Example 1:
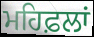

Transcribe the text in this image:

ਮਹਿਫ਼ਲਾਂ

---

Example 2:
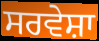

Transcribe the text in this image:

ਸਰਵੇਸ਼ਾ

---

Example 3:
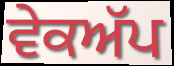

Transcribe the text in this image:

ਵੇਕਅੱਪ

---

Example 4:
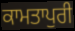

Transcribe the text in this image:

ਕਾਮਤਾਪੁਰੀ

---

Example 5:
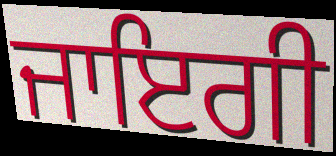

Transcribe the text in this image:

ਜਾਇਗੀ